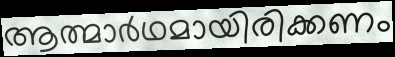
ആത്മാർഥമായിരിക്കണം